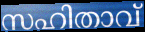
സഹിതാവ്